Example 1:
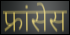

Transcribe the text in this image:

फ्रांसेस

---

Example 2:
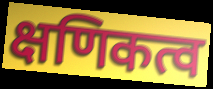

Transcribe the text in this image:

क्षणिकत्व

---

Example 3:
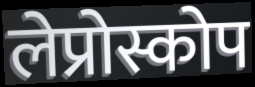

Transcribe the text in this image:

लेप्रोस्कोप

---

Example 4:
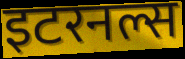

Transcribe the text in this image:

इटरनल्स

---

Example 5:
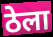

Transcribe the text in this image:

ठेला